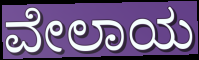
ವೇಲಾಯ